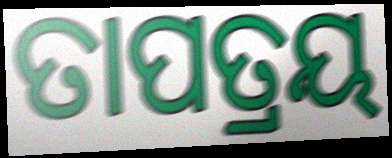
ତାପତ୍ରୟ